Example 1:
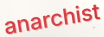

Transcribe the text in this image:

anarchist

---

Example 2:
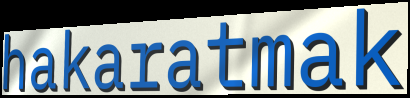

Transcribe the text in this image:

hakaratmak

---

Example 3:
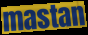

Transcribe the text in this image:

mastan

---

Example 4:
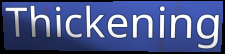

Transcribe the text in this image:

Thickening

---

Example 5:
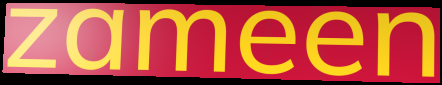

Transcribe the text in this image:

zameen